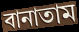
বানাতাম